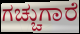
ಗಚ್ಚುಗಾರೆ